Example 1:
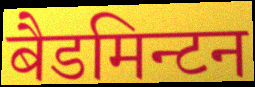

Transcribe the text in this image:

बैडमिन्टन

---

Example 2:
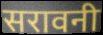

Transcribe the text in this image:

सरावनी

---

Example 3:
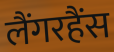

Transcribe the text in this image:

लैंगरहैंस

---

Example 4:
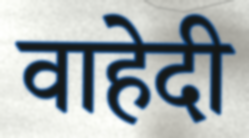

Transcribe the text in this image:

वाहेदी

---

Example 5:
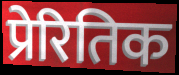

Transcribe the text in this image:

प्रेरितिक